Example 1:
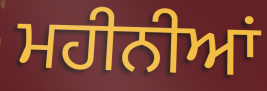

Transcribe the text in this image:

ਮਹੀਨੀਆਂ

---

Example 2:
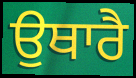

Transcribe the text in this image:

ਉਥਾਰੈ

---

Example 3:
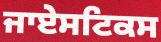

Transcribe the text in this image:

ਜਾਏਸਟਿਕਸ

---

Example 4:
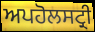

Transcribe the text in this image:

ਅਪਹੋਲਸਟ੍ਰੀ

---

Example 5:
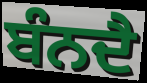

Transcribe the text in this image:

ਬੰਨਦੈ